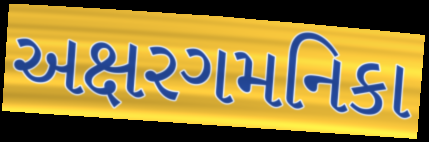
અક્ષરગમનિકા